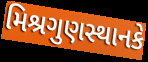
મિશ્રગુણસ્થાનકે